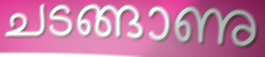
ചടങ്ങാണു